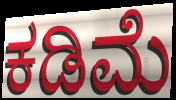
ಕಡಿಮೆ